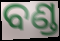
ବଣ୍ଡ